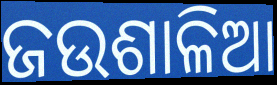
ଜଉଶାଳିଆ